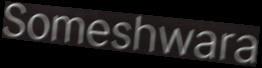
Someshwara